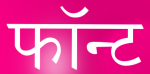
फॉन्ट